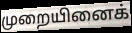
முறையினைக்